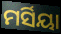
ମର୍ସିୟା